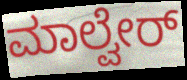
ಮಾಲ್ವೇರ್